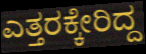
ಎತ್ತರಕ್ಕೇರಿದ್ದ